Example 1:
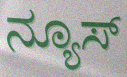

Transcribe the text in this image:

ನ್ಯೂಸ್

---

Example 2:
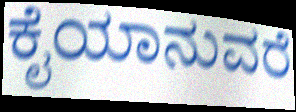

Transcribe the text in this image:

ಕೈಯಾನುವರೆ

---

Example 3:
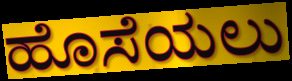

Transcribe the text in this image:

ಹೊಸೆಯಲು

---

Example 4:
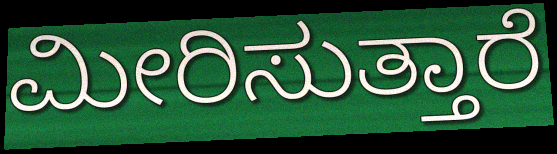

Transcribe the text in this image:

ಮೀರಿಸುತ್ತಾರೆ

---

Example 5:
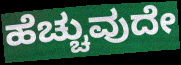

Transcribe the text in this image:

ಹೆಚ್ಚುವುದೇ